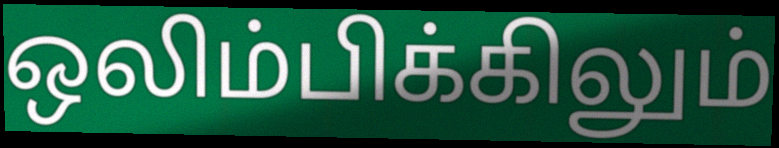
ஒலிம்பிக்கிலும்